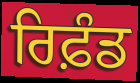
ਰਿਫ਼ੰਡ